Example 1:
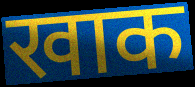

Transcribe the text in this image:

खाक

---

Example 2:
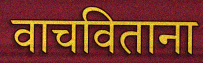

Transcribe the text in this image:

वाचविताना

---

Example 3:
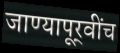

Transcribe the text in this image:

जाण्यापूर्वींच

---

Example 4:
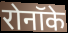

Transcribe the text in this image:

रोनॉके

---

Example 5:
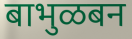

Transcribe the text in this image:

बाभुळबन